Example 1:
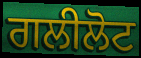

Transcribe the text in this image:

ਗਲੀਲੋਟ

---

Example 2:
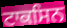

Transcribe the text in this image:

ਟਾਕਸਿਨ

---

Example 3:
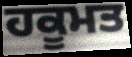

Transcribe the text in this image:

ਹਕੂਮਤ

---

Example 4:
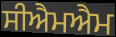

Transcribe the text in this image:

ਸੀਐਮਐਮ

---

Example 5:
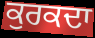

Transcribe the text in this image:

ਕੁਰਕਦਾ